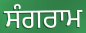
ਸੰਗਰਾਮ